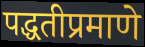
पद्धतीप्रमाणे